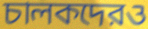
চালকদেরও